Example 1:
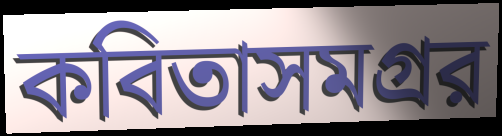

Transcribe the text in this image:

কবিতাসমগ্রর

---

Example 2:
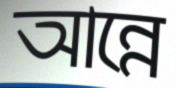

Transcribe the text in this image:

আন্নে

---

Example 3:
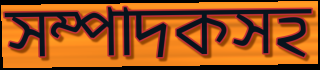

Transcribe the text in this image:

সম্পাদকসহ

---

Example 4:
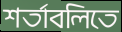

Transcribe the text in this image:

শর্তাবলিতে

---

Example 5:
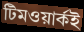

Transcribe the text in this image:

টিমওয়ার্কই